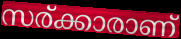
സര്ക്കാരാണ്